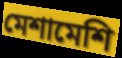
মেশামেশি